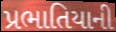
પ્રભાતિયાની